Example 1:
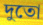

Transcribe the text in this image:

দুতো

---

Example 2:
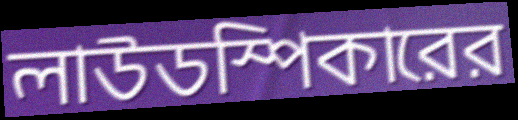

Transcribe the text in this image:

লাউডস্পিকারের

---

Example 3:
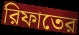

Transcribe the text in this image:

রিফাতের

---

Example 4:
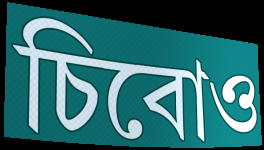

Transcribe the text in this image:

চিবোও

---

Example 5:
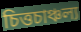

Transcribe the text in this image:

চিত্তচাঞ্চল্য